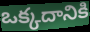
ఒక్కదానికి